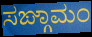
ಸಙ್ಗಾಮಂ